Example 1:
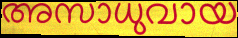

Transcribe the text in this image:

അസാധുവായ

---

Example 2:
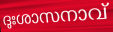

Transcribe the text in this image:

ദുഃശാസനാവ്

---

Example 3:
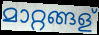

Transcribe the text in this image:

മാറ്റങ്ങള്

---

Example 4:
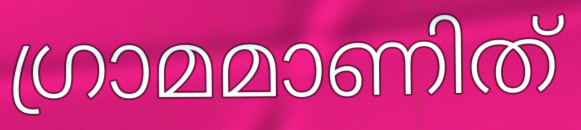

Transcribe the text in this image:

ഗ്രാമമാണിത്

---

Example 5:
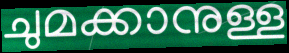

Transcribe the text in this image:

ചുമക്കാനുള്ള